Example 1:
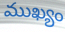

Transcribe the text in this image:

ముఖ్యం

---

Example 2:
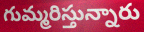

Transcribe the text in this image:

గుమ్మరిస్తున్నారు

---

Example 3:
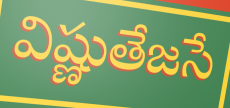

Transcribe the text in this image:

విష్ణుతేజసే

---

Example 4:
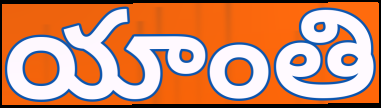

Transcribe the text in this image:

యాంతి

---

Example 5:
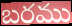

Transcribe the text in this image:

బరము